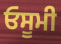
ਓਸੂਮੀ